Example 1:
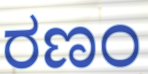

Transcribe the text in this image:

ರಣಂ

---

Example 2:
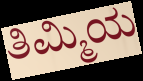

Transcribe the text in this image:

ತಿಮ್ಮಿಯ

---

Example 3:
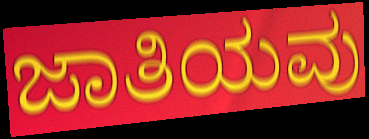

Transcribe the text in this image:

ಜಾತಿಯವು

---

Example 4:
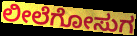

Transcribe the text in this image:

ಲೀಲೆಗೋಸುಗ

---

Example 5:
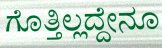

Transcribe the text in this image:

ಗೊತ್ತಿಲ್ಲದ್ದೇನೂ